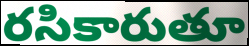
రసికారుతూ